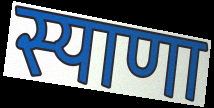
स्याणा